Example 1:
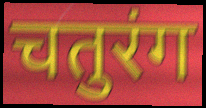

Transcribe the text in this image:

चतुरंग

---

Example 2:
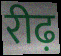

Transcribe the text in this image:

रीढ़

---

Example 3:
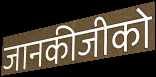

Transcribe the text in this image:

जानकीजीको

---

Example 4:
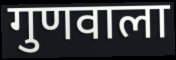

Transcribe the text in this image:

गुणवाला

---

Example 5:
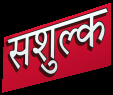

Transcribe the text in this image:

सशुल्क